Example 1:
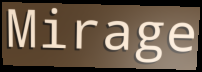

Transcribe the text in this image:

Mirage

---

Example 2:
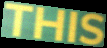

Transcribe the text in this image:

THIS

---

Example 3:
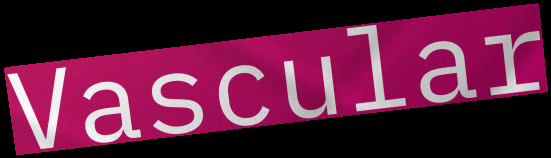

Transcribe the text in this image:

Vascular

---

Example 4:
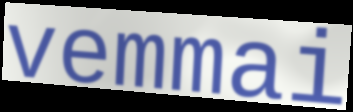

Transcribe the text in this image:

vemmai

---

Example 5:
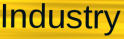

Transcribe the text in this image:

Industry